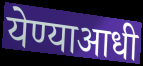
येण्याआधी